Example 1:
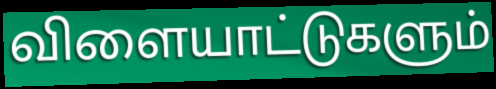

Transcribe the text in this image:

விளையாட்டுகளும்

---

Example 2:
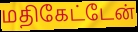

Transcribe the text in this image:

மதிகேட்டேன்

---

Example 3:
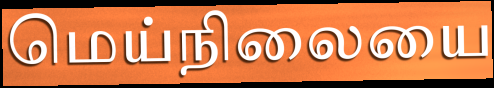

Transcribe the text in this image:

மெய்நிலையை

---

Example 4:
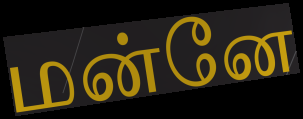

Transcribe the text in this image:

மன்னே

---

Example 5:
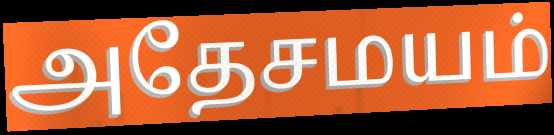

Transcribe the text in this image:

அதேசமயம்